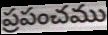
ప్రపంచము